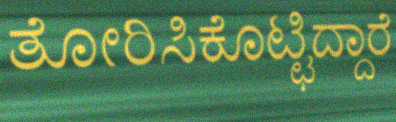
ತೋರಿಸಿಕೊಟ್ಟಿದ್ದಾರೆ